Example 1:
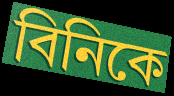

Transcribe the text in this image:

বিনিকে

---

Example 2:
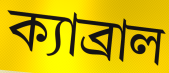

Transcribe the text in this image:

ক্যাব্রাল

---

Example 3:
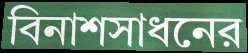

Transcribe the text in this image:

বিনাশসাধনের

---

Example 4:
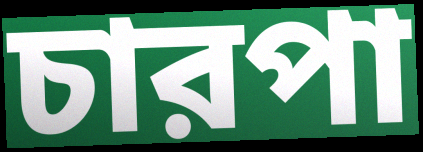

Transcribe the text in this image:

চারপা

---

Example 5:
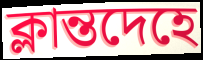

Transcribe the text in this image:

ক্লান্তদেহে